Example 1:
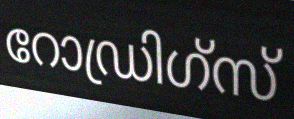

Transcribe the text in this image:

റോഡ്രിഗ്സ്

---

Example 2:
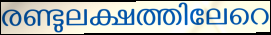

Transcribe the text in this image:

രണ്ടുലക്ഷത്തിലേറെ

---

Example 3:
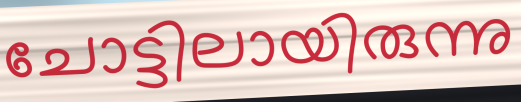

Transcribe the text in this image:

ചോട്ടിലായിരുന്നു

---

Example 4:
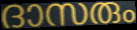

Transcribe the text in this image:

ദാസരും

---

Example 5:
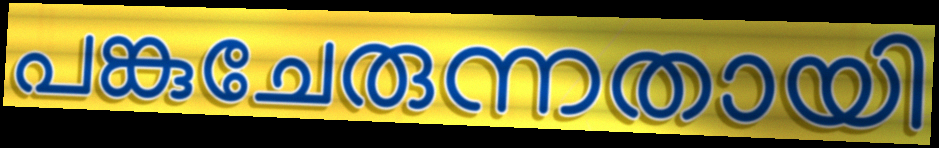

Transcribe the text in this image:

പങ്കുചേരുന്നതായി